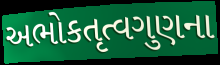
અભોકતૃત્વગુણના